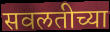
सवलतीच्या